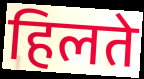
हिलते